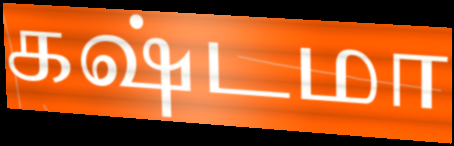
கஷ்டமா